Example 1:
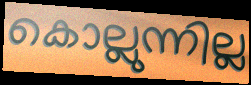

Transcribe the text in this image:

കൊല്ലുന്നില്ല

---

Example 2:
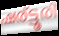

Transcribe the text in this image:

ഷര്ട്ടൂരി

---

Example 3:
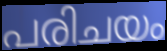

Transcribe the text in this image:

പരിചയം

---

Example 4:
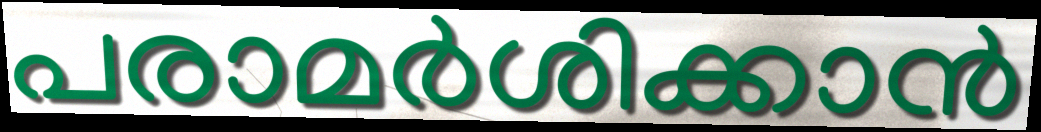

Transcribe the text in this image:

പരാമർശിക്കാൻ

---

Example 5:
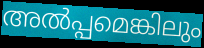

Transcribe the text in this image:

അൽപ്പമെങ്കിലും